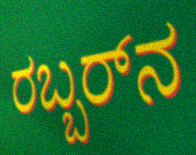
ರಬ್ಬರ್‌ನ